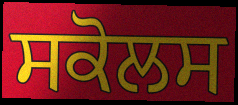
ਸਕੋਲਸ